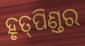
ହୃତ୍‍ପିଣ୍ଡର